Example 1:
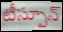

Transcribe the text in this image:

టీస్పూన్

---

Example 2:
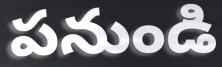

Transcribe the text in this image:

పనుండి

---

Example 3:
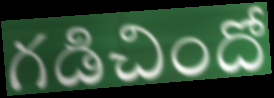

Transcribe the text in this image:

గడిచిందో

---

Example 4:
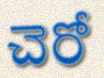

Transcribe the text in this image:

చెరో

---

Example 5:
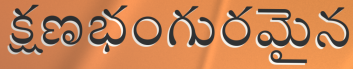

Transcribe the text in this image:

క్షణభంగురమైన